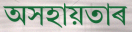
অসহায়তাৰ